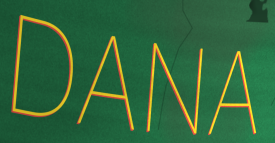
DANA